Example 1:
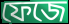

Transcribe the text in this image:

ফেজে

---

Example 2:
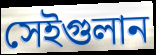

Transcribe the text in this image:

সেইগুলান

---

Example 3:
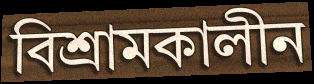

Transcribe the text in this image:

বিশ্রামকালীন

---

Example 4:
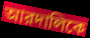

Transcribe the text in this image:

আরদালিকে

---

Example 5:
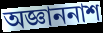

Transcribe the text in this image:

অজ্ঞাননাশ